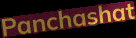
Panchashat